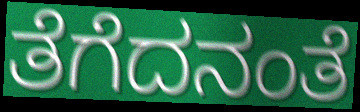
ತೆಗೆದನಂತೆ